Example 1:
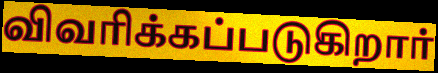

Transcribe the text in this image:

விவரிக்கப்படுகிறார்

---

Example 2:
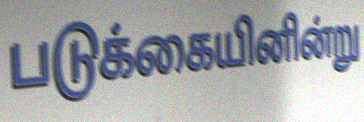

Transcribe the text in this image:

படுக்கையினின்று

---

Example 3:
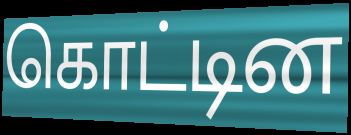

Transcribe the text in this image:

கொட்டின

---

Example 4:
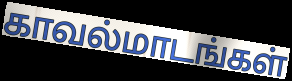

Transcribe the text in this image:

காவல்மாடங்கள்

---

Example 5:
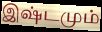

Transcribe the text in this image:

இஷ்டமும்